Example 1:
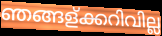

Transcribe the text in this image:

ഞങ്ങള്ക്കറിവില്ല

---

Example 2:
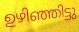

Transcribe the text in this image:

ഉഴിഞ്ഞിട്ടു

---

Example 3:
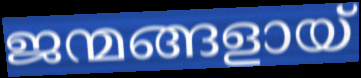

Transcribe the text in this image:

ജന്മങ്ങളായ്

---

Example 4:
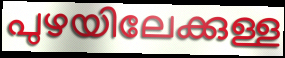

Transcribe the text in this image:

പുഴയിലേക്കുള്ള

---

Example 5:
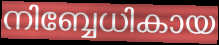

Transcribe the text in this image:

നിബ്ബേധികായ